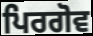
ਪਿਰਗੋਵ